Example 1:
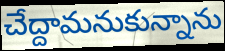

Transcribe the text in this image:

చేద్దామనుకున్నాను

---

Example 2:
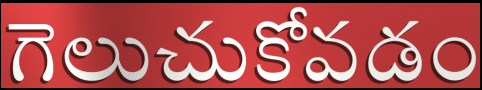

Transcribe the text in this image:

గెలుచుకోవడం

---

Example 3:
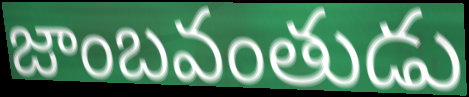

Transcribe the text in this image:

జాంబవంతుడు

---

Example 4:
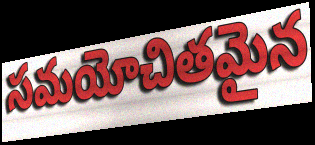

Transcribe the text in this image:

సమయోచితమైన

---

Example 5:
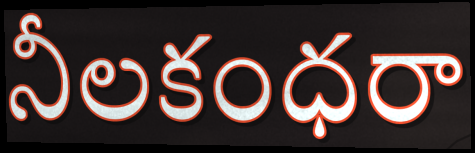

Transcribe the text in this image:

నీలకంధరా